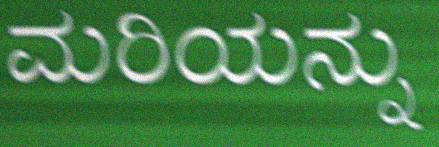
ಮರಿಯನ್ನು